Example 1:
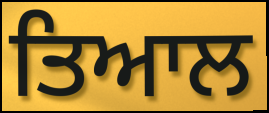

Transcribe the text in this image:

ਤਿਆਲ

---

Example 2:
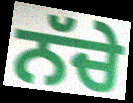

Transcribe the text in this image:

ਨੱਚੇ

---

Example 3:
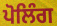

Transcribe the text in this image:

ਪੋਲਿੰਗ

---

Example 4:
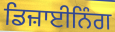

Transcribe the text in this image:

ਡਿਜ਼ਾਈਨਿੰਗ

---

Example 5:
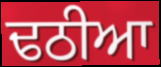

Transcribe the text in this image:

ਢਠੀਆ